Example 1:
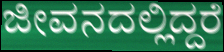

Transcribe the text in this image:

ಜೀವನದಲ್ಲಿದ್ದರೆ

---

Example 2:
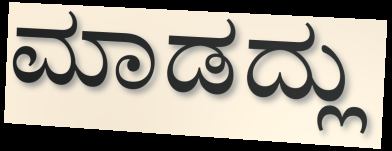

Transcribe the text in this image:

ಮಾಡದ್ಲು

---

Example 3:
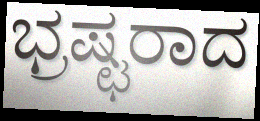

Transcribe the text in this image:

ಭ್ರಷ್ಟರಾದ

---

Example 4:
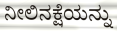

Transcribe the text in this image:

ನೀಲಿನಕ್ಷೆಯನ್ನು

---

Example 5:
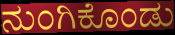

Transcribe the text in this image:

ನುಂಗಿಕೊಂಡು